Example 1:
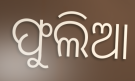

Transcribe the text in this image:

ଫୁଲିଆ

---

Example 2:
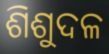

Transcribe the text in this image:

ଶିଶୁଦଳ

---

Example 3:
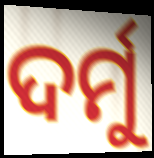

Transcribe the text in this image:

ଦର୍ମୁ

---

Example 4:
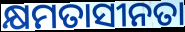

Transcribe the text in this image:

କ୍ଷମତାସୀନତା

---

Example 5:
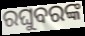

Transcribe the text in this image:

ରଘୁବରଙ୍କ